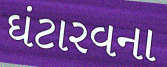
ઘંટારવના